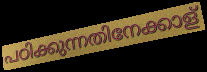
പഠിക്കുന്നതിനേക്കാള്